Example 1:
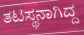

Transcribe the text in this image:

ತಟಸ್ಥನಾಗಿದ್ದ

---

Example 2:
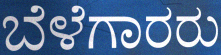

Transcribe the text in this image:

ಬೆಳೆಗಾರರು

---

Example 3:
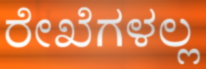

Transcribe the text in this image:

ರೇಖೆಗಳಲ್ಲ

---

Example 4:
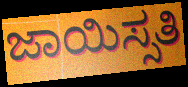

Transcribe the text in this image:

ಜಾಯಿಸ್ಸತಿ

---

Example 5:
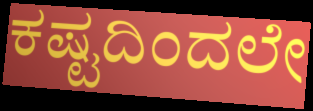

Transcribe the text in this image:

ಕಷ್ಟದಿಂದಲೇ